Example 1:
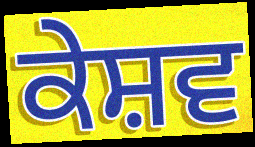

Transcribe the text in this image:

ਕੇਸ਼ਵ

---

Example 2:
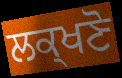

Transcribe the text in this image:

ਲਕ੍ਖਣੋ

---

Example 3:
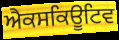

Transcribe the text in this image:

ਐਕਸਕਿਊਟਿਵ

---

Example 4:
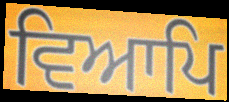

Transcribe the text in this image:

ਵਿਆਪਿ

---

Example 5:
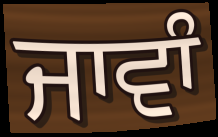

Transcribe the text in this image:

ਜਾਵਾੰ